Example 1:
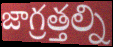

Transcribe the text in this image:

జాగ్రత్తల్ని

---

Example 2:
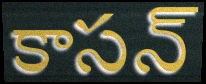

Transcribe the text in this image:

కాసన్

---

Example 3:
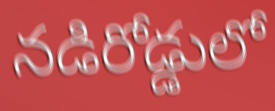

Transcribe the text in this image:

నడిరోడ్డులో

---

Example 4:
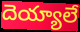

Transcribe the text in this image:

దెయ్యాలే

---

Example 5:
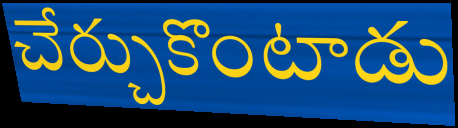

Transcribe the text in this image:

చేర్చుకొంటాడు